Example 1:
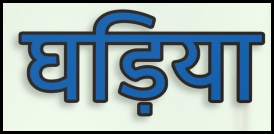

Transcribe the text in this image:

घड़िया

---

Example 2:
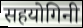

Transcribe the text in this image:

सहयोगिनी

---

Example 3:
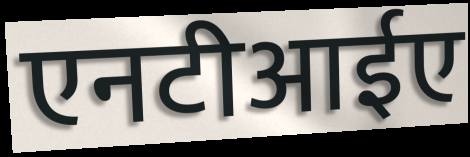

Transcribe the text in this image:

एनटीआईए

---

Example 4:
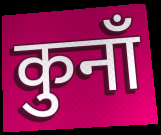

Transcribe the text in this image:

कुनाँ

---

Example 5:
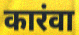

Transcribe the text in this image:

कारंवा